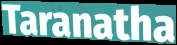
Taranatha